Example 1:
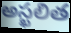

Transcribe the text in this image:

అస్ఖలిత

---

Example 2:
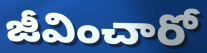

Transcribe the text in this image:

జీవించారో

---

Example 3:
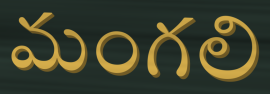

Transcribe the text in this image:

మంగలి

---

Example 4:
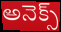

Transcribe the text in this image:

అనెక్స్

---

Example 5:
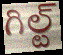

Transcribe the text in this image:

గిల్ట్